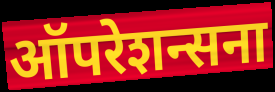
ऑपरेशन्सना